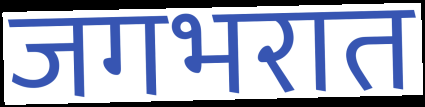
जगभरात